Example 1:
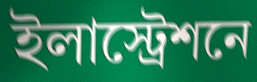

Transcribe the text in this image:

ইলাস্ট্রেশনে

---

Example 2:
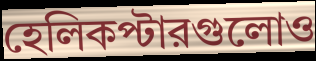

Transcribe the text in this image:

হেলিকপ্টারগুলোও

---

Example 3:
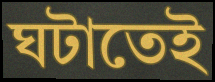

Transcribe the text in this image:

ঘটাতেই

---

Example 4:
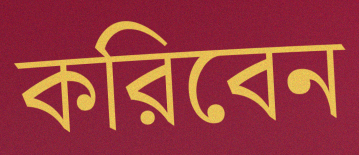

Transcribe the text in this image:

করিবেন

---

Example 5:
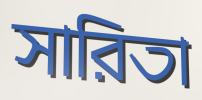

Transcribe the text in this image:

সারিতা